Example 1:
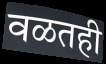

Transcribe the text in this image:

वळतही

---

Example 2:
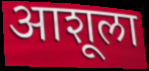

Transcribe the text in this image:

आशूला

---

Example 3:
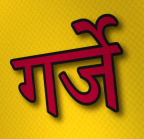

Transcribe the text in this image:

गर्जे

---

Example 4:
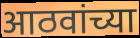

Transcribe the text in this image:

आठवांच्या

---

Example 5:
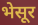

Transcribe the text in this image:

भेसूर